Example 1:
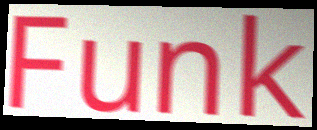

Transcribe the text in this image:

Funk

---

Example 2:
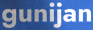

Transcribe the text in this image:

gunijan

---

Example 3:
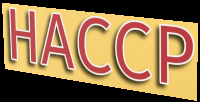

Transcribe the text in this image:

HACCP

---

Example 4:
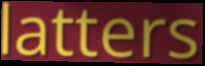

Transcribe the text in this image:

latters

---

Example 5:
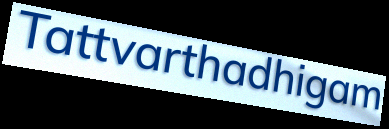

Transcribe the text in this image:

Tattvarthadhigam